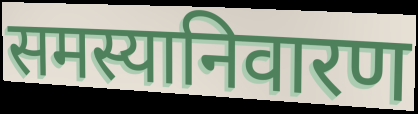
समस्यानिवारण